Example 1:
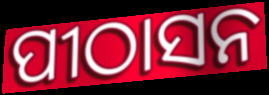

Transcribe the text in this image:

ପୀଠାସନ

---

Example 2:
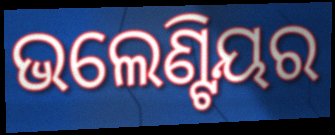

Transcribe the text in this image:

ଭଲେଣ୍ଟିୟର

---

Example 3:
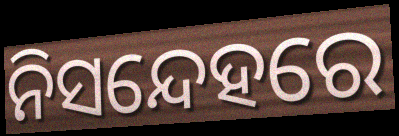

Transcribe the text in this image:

ନିସନ୍ଦେହରେ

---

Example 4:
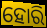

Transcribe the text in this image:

ହୋରି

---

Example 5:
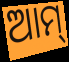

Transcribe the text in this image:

ଆମ୍